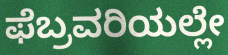
ಫೆಬ್ರವರಿಯಲ್ಲೇ